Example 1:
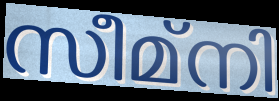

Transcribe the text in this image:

സീമ്നി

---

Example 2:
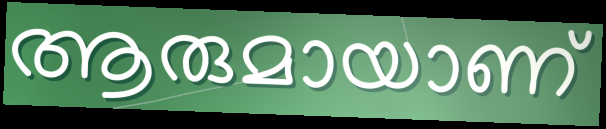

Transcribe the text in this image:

ആരുമായാണ്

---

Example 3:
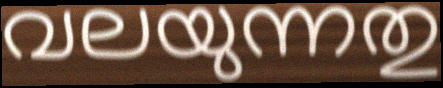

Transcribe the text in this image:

വലയുന്നതു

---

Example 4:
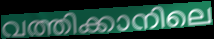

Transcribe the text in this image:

വത്തിക്കാനിലെ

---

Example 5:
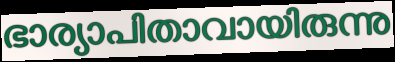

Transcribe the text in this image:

ഭാര്യാപിതാവായിരുന്നു